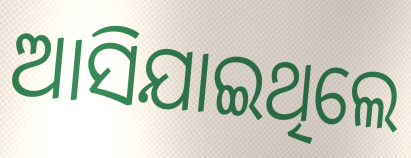
ଆସିଯାଇଥିଲେ